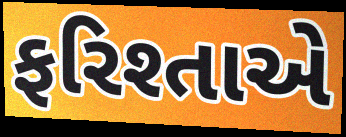
ફરિશ્તાએ